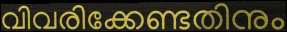
വിവരിക്കേണ്ടതിനും